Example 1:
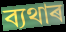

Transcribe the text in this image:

ব্যথাৰ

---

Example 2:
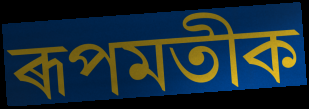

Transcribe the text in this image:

ৰূপমতীক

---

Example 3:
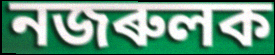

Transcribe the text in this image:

নজৰুলক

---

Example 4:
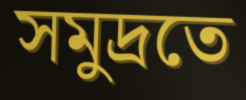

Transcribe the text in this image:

সমুদ্ৰতে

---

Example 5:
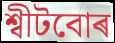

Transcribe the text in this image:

শ্বীটবোৰ